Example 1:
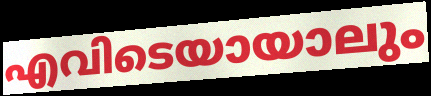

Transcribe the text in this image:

എവിടെയായാലും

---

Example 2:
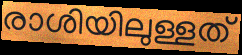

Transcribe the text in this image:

രാശിയിലുള്ളത്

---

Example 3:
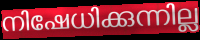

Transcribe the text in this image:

നിഷേധിക്കുന്നില്ല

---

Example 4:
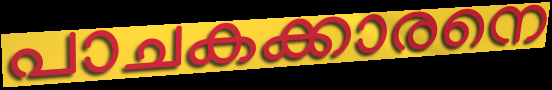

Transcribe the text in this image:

പാചകക്കാരനെ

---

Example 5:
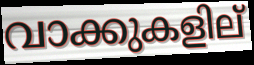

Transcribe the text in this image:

വാക്കുകളില്